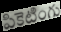
పికెటింగు